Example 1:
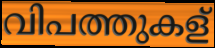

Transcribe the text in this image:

വിപത്തുകള്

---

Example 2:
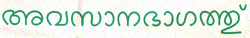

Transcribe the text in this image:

അവസാനഭാഗത്തു്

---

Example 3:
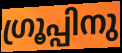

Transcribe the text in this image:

ഗ്രൂപ്പിനു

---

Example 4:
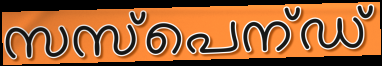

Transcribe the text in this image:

സസ്പെന്ഡ്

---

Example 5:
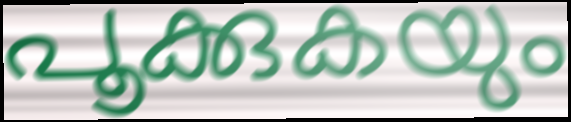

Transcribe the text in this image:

പൂക്കുകയും